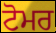
ਟੋਮਰ